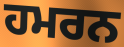
ਹਮਰਨ